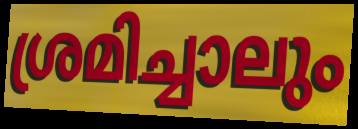
ശ്രമിച്ചാലും